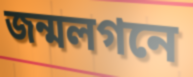
জন্মলগনে